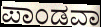
ಪಾಂಡವಾ